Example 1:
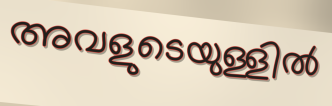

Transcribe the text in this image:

അവളുടെയുള്ളിൽ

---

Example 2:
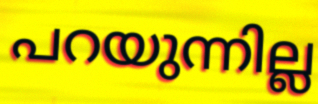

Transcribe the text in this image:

പറയുന്നില്ല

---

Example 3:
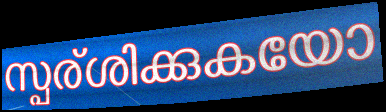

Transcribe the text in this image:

സ്പര്ശിക്കുകയോ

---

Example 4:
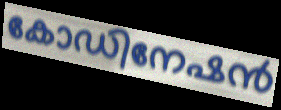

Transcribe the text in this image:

കോഡിനേഷൻ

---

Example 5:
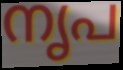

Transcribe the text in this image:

നൃപ